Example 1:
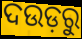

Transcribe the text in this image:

ଦଉଡ଼ରୁ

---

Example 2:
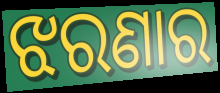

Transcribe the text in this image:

ଝରଣାର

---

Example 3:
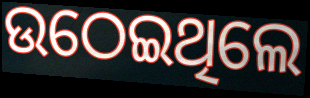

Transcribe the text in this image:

ଉଠେଇଥିଲେ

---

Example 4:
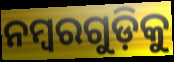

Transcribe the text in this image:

ନମ୍ବରଗୁଡ଼ିକୁ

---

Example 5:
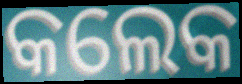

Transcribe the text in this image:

କଲେକ